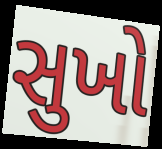
સુખો